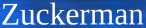
Zuckerman